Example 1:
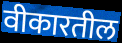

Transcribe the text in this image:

वीकारतील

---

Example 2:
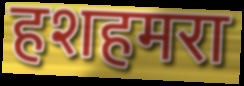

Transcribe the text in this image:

हशहमरा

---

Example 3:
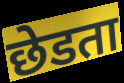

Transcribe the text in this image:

छेडता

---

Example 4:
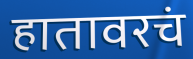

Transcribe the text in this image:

हातावरचं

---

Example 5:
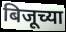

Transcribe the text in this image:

बिजूच्या